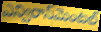
ఎన్విరాన్‌మెంటల్